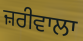
ਜ਼ਰੀਵਾਲਾ